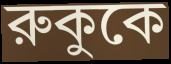
রুকুকে